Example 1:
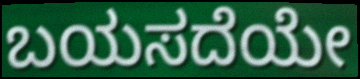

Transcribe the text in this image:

ಬಯಸದೆಯೇ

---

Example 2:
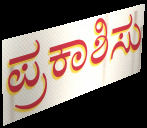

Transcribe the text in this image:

ಪ್ರಕಾಶಿಸು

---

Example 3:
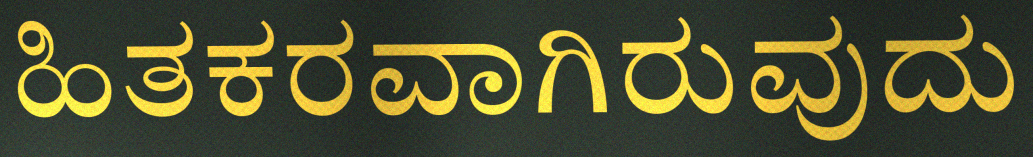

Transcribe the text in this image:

ಹಿತಕರವಾಗಿರುವುದು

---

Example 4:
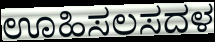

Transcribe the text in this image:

ಊಹಿಸಲಸದಳ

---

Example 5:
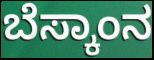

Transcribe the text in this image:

ಬೆಸ್ಕಾಂನ